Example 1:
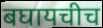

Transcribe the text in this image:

बघायचीच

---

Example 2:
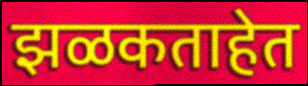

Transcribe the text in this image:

झळकताहेत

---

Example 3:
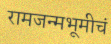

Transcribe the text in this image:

रामजन्मभूमीचं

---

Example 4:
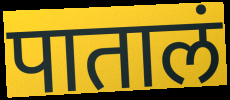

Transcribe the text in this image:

पातालं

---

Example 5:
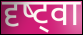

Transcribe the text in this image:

दृष्ट्‍वा